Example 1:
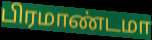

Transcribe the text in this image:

பிரமாண்டமா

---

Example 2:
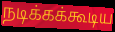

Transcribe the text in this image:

நடிக்கக்கூடிய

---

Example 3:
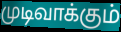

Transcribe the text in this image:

முடிவாக்கும்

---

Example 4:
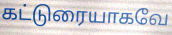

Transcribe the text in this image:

கட்டுரையாகவே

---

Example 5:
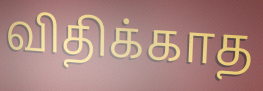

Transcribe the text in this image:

விதிக்காத